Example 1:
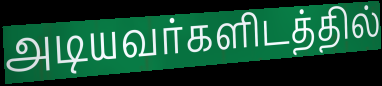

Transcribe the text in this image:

அடியவர்களிடத்தில்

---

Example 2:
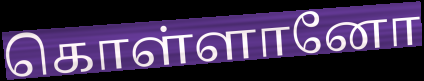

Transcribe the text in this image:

கொள்ளானோ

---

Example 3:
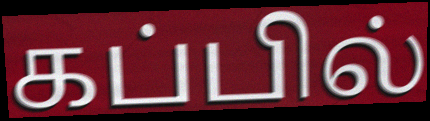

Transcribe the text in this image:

கப்பில்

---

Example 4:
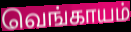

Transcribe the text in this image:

வெங்காயம்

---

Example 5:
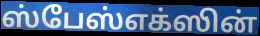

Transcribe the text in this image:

ஸ்பேஸ்எக்ஸின்